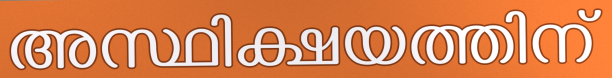
അസ്ഥിക്ഷയത്തിന്